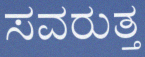
ಸವರುತ್ತ